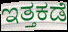
ಇತ್ತಕಡೆ